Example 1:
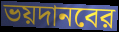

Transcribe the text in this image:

ভয়দানবের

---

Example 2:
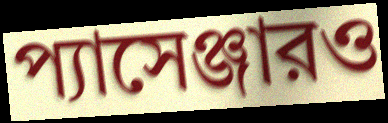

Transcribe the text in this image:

প্যাসেঞ্জারও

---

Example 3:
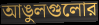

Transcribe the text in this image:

আঙুলগুলোর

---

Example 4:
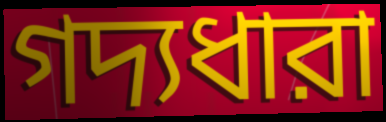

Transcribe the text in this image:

গদ্যধারা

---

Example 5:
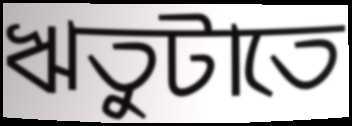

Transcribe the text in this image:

ঋতুটাতে